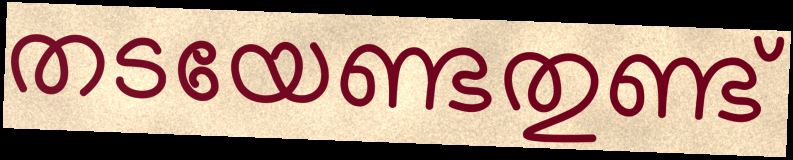
തടയേണ്ടതുണ്ട്